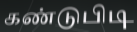
கண்டுபிடி